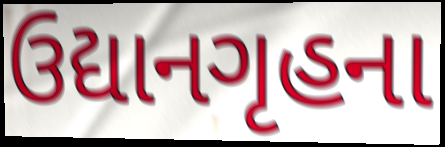
ઉદ્યાનગૃહના